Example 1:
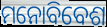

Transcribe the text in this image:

ମନୋବିବେଶ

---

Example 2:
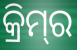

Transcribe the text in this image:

କ୍ରିମ୍‌ର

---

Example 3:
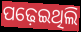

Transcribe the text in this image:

ପଢ଼େଇଥିଲି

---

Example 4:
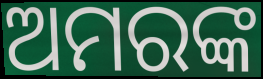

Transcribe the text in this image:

ଅମରଙ୍କ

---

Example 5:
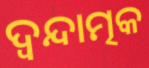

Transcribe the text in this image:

ଦ୍ୱନ୍ଦାତ୍ମକ